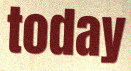
today